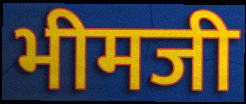
भीमजी